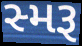
સ્મરૂ